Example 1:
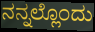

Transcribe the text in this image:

ನನ್ನಲ್ಲೊಂದು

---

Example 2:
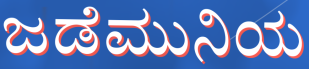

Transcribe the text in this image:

ಜಡೆಮುನಿಯ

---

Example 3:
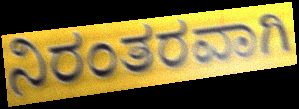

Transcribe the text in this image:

ನಿರಂತರವಾಗಿ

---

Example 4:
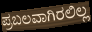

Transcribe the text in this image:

ಪ್ರಬಲವಾಗಿರಲಿಲ್ಲ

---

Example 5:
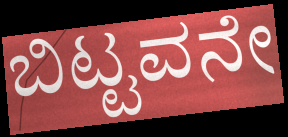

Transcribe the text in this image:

ಬಿಟ್ಟವನೇ